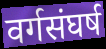
वर्गसंघर्ष